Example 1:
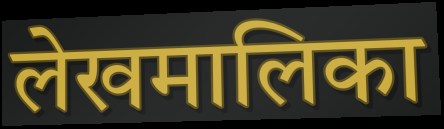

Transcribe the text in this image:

लेखमालिका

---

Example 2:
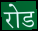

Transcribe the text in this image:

रोड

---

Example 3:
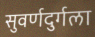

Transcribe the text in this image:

सुवर्णदुर्गला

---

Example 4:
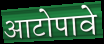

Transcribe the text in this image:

आटोपावे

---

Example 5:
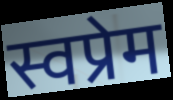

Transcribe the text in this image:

स्वप्रेम